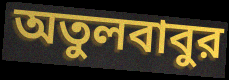
অতুলবাবুর